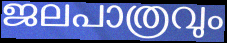
ജലപാത്രവും